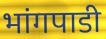
भांगपाडी